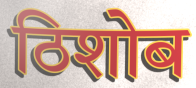
ठिशोब